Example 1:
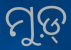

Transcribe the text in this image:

ମୁଡ଼୍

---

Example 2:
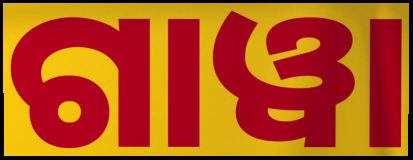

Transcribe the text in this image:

ଗାୱା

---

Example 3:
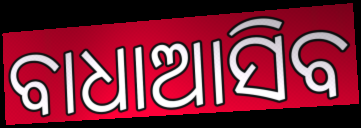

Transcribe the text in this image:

ବାଧାଆସିବ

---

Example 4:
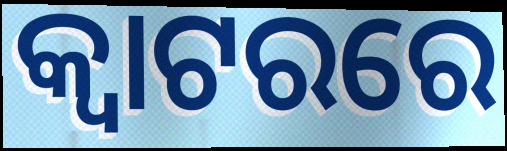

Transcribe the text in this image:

କ୍ୱାଟରରେ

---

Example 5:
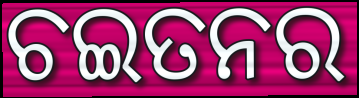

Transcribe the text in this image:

ଚଇତନର